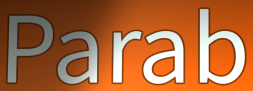
Parab